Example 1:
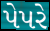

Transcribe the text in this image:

પેપરે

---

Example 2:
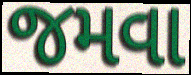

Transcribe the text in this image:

જમવા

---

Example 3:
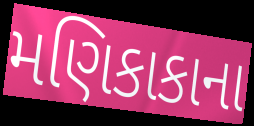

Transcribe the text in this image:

મણિકાકાના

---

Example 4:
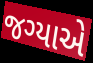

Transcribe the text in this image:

જગ્યાએ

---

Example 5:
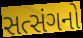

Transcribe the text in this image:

સત્સંગનો